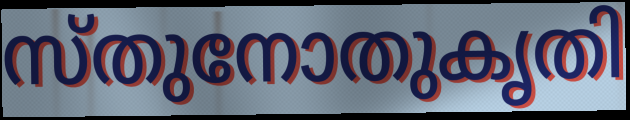
സ്തുനോതുകൃതി